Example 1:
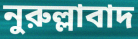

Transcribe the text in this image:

নুরুল্লাবাদ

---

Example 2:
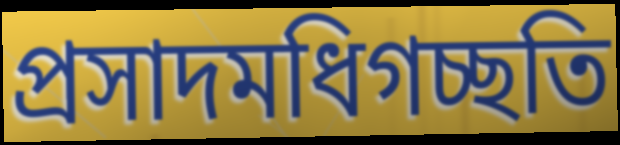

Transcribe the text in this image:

প্রসাদমধিগচ্ছতি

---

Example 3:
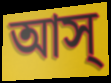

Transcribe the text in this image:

আস্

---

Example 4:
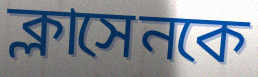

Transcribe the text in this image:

ক্লাসেনকে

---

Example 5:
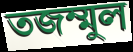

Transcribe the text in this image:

তজম্মুল